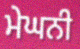
ਮੇਘਨੀ